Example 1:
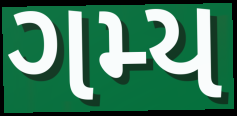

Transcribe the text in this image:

ગમ્ય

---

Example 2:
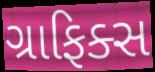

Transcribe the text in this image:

ગ્રાફિક્સ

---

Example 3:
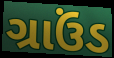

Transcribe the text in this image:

ગ્રાઉંડ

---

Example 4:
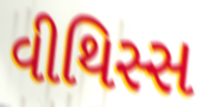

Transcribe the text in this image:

વીથિસ્સ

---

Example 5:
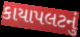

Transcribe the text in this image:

કાયાપલટનું